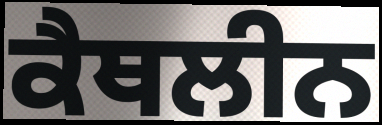
ਕੈਥਲੀਨ